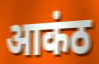
आकंठ